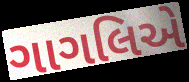
ગાગલિએ